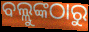
ବଲ୍ଲୁଙ୍କଠାରୁ